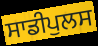
ਸਾਡੀਪੁਲਸ